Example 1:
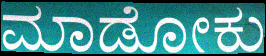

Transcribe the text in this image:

ಮಾಡೋಕು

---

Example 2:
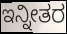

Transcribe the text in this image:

ಇನ್ನೀತರ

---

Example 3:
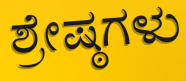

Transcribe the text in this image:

ಶ್ರೇಷ್ಠಗಳು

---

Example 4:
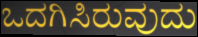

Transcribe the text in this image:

ಒದಗಿಸಿರುವುದು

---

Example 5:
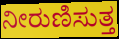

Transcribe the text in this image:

ನೀರುಣಿಸುತ್ತ